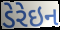
ડેરેઇન